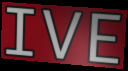
IVE